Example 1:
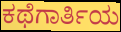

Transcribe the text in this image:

ಕಥೆಗಾರ್ತಿಯ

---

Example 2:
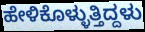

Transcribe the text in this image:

ಹೇಳಿಕೊಳ್ಳುತ್ತಿದ್ದಳು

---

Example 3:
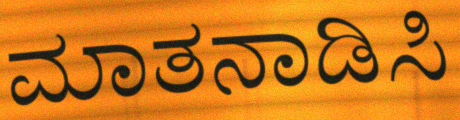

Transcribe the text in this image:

ಮಾತನಾಡಿಸಿ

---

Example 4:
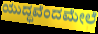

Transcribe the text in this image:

ಯುದ್ಧವೆಂದಮೇಲೆ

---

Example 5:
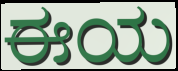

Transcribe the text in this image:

ಈಯ